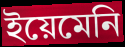
ইয়েমেনি